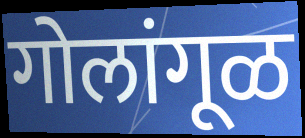
गोलांगूळ